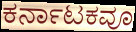
ಕರ್ನಾಟಕವೂ